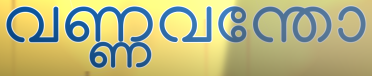
വണ്ണവന്തോ